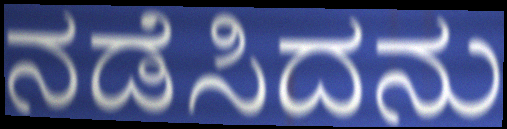
ನಡೆಸಿದನು